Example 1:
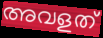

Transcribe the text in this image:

അവളത്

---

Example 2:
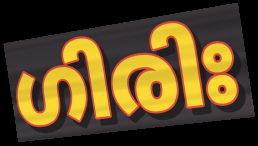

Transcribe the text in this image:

ഗിരിഃ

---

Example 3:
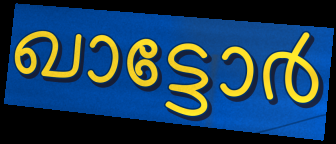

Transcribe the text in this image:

ഖാട്ടോർ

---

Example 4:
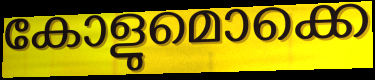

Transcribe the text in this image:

കോളുമൊക്കെ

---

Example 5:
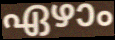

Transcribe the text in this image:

ഏഴാം